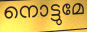
നൊട്ടുമേ